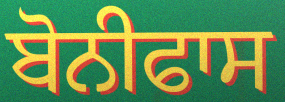
ਬੋਨੀਫਾਸ